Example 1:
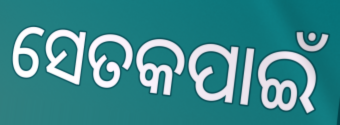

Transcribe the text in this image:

ସେତକପାଇଁ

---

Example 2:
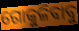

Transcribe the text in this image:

ଗୋକୁଳିବାବୁ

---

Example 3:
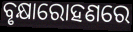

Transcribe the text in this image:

ବୃକ୍ଷାରୋହଣରେ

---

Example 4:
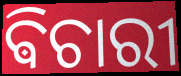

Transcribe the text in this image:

ଵିଚାରୀ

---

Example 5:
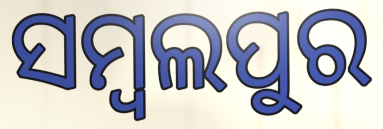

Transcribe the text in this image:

ସମ୍ବଲପୁର